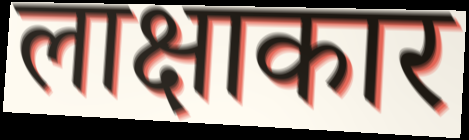
लाक्षाकार